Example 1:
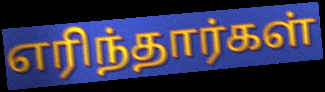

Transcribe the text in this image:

எரிந்தார்கள்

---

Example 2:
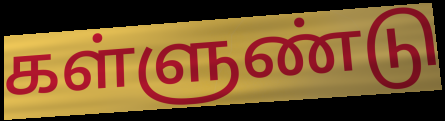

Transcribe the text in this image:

கள்ளுண்டு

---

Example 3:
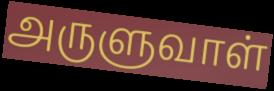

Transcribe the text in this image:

அருளுவாள்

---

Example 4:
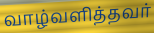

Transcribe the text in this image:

வாழ்வளித்தவர்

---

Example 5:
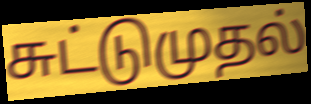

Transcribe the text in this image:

சுட்டுமுதல்